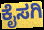
ಕೈಸಗಿ